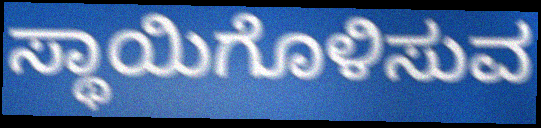
ಸ್ಥಾಯಿಗೊಳಿಸುವ